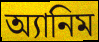
অ্যানিম